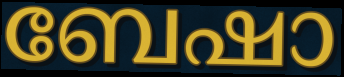
ബേഷാ